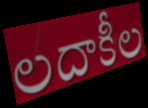
లదాకీల